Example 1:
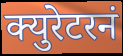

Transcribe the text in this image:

क्युरेटरनं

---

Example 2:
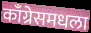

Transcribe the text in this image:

काँग्रेसमधला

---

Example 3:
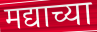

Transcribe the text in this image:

मद्याच्या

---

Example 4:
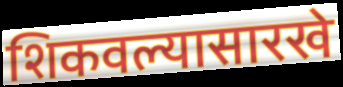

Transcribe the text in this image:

शिकवल्यासारखे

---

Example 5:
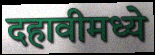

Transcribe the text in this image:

दहावीमध्ये